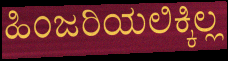
ಹಿಂಜರಿಯಲಿಕ್ಕಿಲ್ಲ